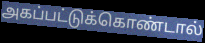
அகப்பட்டுக்கொண்டால்